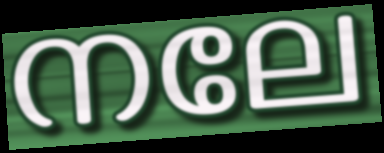
നലേ